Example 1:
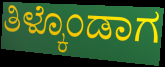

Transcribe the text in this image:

ತಿಳ್ಕೊಂಡಾಗ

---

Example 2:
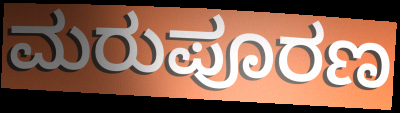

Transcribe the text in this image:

ಮರುಪೂರಣ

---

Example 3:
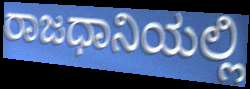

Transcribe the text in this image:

ರಾಜಧಾನಿಯಲ್ಲಿ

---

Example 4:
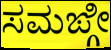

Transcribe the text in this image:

ಸಮಙ್ಗೀ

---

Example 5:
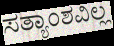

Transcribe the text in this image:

ಸತ್ಯಾಂಶವಿಲ್ಲ